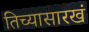
तिच्यासारखं